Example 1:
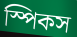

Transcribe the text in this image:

স্পিকস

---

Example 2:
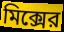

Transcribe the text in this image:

মিক্সের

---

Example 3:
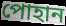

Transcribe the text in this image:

পোহান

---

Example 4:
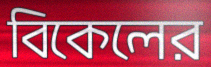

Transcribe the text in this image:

বিকেলের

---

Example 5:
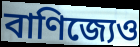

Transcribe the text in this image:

বাণিজ্যেও